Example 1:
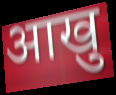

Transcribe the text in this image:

आखु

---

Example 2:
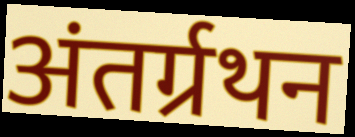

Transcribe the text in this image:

अंतर्ग्रथन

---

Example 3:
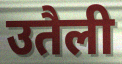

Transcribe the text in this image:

उतैली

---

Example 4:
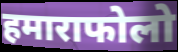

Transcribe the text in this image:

हमाराफोलो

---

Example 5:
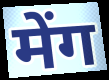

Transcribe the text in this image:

मेंग